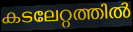
കടലേറ്റത്തിൽ